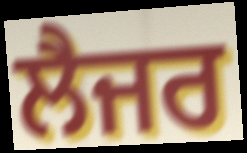
ਲੈਜਰ